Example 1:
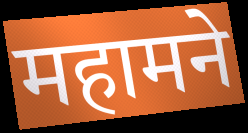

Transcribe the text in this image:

महामने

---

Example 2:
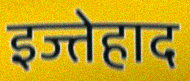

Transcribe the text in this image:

इज्तेहाद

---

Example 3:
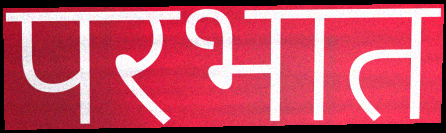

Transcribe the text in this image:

परभात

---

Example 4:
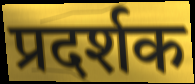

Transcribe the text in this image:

प्रदर्शक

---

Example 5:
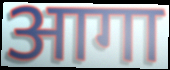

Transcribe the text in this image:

आगा